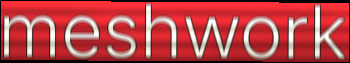
meshwork